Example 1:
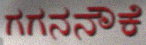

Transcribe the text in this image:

ಗಗನನೌಕೆ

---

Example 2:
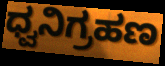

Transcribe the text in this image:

ಧ್ವನಿಗ್ರಹಣ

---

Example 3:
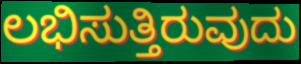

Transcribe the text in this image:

ಲಭಿಸುತ್ತಿರುವುದು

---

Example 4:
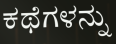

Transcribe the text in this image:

ಕಥೆಗಳನ್ನು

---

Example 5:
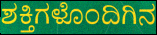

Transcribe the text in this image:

ಶಕ್ತಿಗಳೊಂದಿಗಿನ